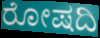
ರೋಷದಿ